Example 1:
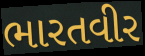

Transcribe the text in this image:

ભારતવીર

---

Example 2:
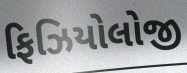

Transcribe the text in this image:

ફિઝિયોલોજી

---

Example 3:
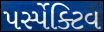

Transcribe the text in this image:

પર્સ્પેક્ટિવ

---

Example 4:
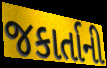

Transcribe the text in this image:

જકાર્તાની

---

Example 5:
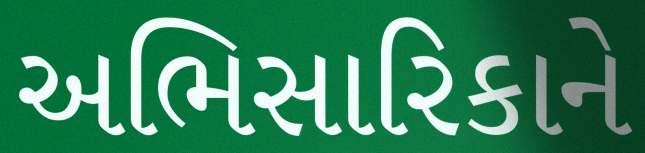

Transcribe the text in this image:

અભિસારિકાને